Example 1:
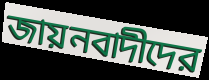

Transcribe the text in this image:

জায়নবাদীদের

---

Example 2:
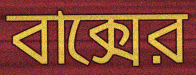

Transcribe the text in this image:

বাক্সের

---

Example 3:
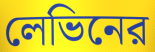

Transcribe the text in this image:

লেভিনের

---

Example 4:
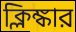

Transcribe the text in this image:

ক্লিঙ্কার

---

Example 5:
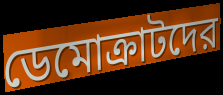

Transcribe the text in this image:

ডেমোক্রাটদের